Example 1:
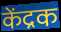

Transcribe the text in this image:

केंद्रक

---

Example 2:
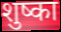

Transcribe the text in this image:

शुष्का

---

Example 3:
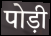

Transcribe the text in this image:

पोड़ी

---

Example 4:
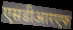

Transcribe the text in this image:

एसडीआरएफ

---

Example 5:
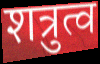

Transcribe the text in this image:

शत्रुत्व